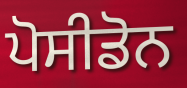
ਪੋਸੀਡੋਨ